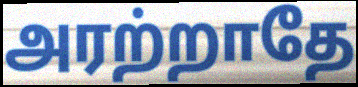
அரற்றாதே